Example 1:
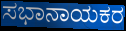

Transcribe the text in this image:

ಸಭಾನಾಯಕರ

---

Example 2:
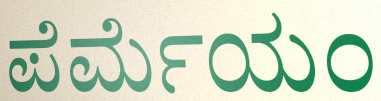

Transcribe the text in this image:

ಪೆರ್ಮೆಯಂ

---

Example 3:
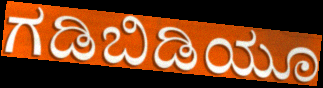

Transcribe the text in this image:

ಗಡಿಬಿಡಿಯೂ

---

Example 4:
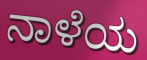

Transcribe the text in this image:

ನಾಳೆಯ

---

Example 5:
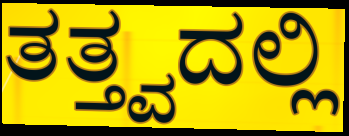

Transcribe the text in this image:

ತತ್ತ್ವದಲ್ಲಿ